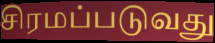
சிரமப்படுவது